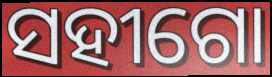
ସହୀଗୋ